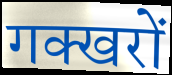
गक्खरों